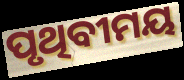
ପୃଥିବୀମୟ